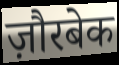
ज़ौरबेक